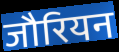
जौरियन